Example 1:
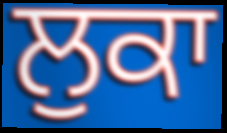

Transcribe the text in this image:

ਲੁਕਾ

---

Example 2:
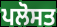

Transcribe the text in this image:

ਪਲੋਸਤ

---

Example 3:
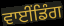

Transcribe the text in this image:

ਵਾਈਂਡਿੰਗ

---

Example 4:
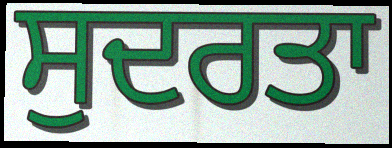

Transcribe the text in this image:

ਸੁਦਰਤਾ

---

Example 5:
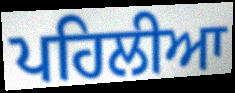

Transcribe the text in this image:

ਪਹਿਲੀਆ